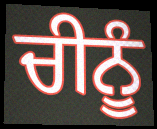
ਚੀਨੂੰ